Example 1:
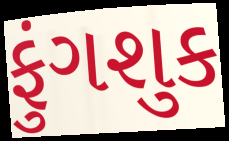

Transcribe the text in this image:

ફુંગશુક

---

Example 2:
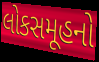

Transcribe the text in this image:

લોકસમૂહનો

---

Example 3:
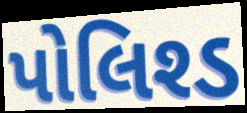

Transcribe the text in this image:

પોલિશ્ડ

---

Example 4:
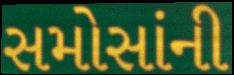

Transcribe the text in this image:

સમોસાંની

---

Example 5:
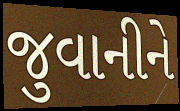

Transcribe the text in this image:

જુવાનીને